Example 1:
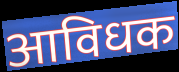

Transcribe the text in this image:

आविधक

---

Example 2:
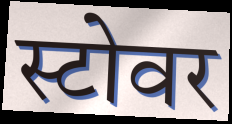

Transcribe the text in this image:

स्टोवर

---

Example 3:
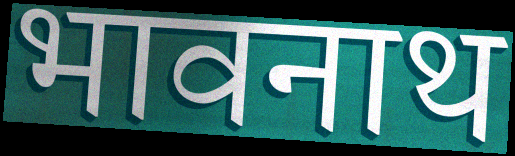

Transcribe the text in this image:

भावनाथ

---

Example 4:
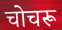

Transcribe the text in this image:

चोचरू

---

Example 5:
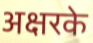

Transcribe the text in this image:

अक्षरके